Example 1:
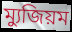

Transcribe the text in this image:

ম্যুজিয়ম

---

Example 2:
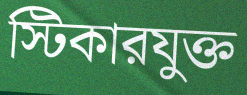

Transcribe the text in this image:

স্টিকারযুক্ত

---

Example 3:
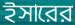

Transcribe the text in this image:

ইসারের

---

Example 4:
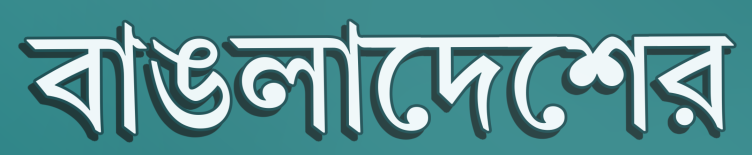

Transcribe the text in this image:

বাঙলাদেশের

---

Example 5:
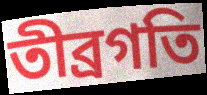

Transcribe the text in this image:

তীব্রগতি